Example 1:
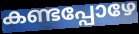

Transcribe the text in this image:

കണ്ടപ്പോഴേ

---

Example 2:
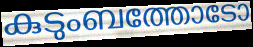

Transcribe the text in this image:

കുടുംബത്തോടോ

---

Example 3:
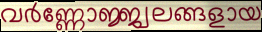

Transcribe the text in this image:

വർണ്ണോജ്ജ്വലങ്ങളായ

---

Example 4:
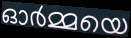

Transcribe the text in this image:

ഓർമ്മയെ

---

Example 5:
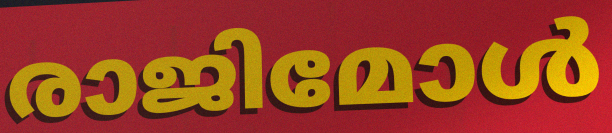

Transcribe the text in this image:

രാജിമോൾ